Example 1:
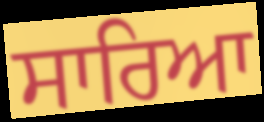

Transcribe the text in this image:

ਸਾਰਿਆ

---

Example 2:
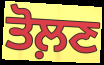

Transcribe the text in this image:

ਤੋਲ਼ਣ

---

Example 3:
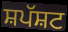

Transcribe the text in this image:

ਸ਼ਪੱਸ਼ਟ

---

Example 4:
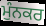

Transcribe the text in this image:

ਮੁੰਨਕਰ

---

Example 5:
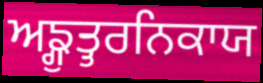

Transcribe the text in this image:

ਅਙ੍ਗੁਤ੍ਤਰਨਿਕਾਯ